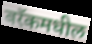
बरॅकमधील